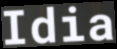
Idia